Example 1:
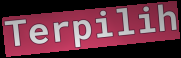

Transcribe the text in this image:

Terpilih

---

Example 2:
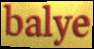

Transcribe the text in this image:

balye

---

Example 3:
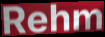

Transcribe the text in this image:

Rehm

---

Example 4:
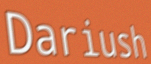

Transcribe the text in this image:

Dariush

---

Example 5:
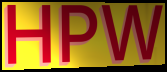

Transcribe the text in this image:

HPW